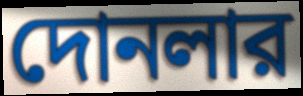
দোনলার